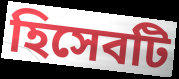
হিসেবটি